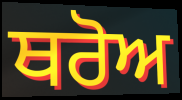
ਥਰੋਅ